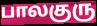
பாலகுரு